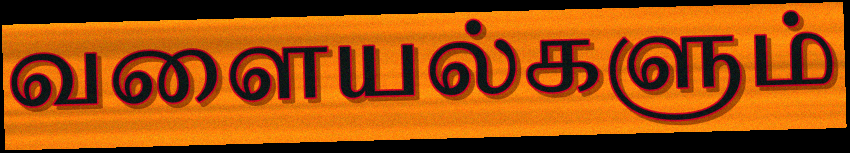
வளையல்களும்